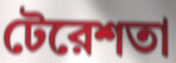
টেরেশতা